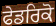
ਫੇਡਰਿਕੋ